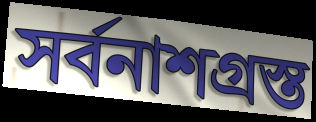
সর্বনাশগ্রস্ত